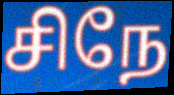
சிநே